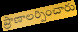
ప్రాణాలర్పించారు